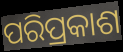
ପରିପ୍ରକାଶ